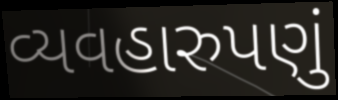
વ્યવહારુપણું